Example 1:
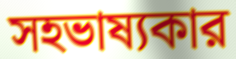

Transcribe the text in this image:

সহভাষ্যকার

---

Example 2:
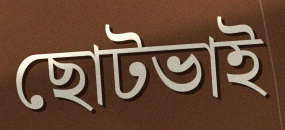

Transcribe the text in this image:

ছোটভাই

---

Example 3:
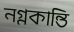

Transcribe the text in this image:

নগ্নকান্তি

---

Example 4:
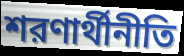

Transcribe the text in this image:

শরণার্থীনীতি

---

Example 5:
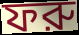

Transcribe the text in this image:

ফরু